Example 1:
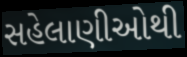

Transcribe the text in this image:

સહેલાણીઓથી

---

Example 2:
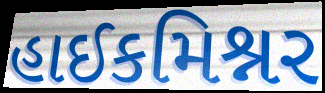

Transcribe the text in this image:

હાઈકમિશ્નર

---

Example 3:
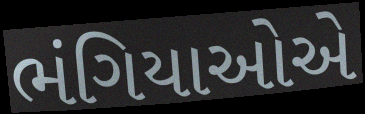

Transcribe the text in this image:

ભંગિયાઓએ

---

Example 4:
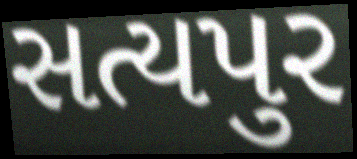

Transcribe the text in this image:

સત્યપુર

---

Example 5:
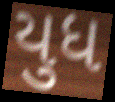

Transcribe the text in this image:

યુધ